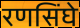
रणसिंघे